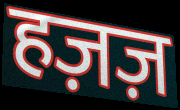
हज़ज़